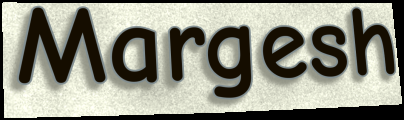
Margesh